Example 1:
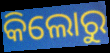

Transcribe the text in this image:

କିଲୋରୁ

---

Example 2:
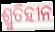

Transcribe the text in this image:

ଶ୍ରୁତିହୀନ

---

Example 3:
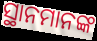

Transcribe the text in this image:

ସ୍ଥାନମାନଙ୍କ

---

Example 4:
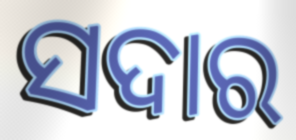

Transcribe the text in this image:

ସଦାର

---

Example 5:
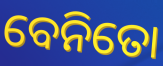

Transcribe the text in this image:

ବେନିତୋ